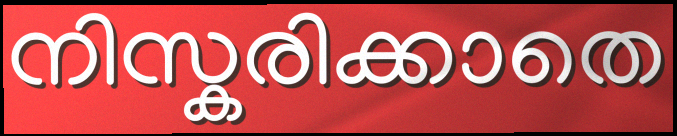
നിസ്കരിക്കാതെ